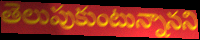
తెలుపుకుంటున్నానని